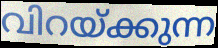
വിറയ്ക്കുന്ന